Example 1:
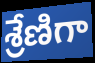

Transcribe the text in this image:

శ్రేణిగా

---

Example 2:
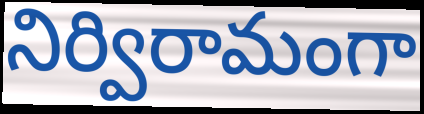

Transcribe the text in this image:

నిర్విరామంగా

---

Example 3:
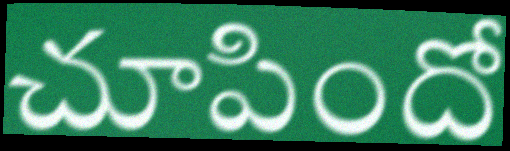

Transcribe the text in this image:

చూపిందో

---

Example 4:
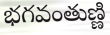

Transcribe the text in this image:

భగవంతుణ్ణి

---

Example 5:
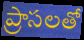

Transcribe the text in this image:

ప్రాసలతో